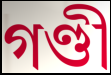
গণ্ডী